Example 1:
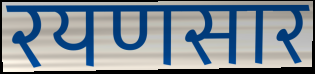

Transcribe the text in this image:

रयणसार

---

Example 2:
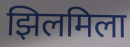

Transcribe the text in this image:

झिलमिला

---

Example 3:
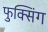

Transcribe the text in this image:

फुक्सिंग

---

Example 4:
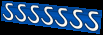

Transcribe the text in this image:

ऽऽऽऽऽऽऽ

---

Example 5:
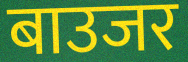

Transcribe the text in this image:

बाउजर